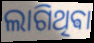
ଲାଗିଥିଵା